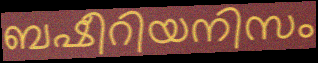
ബഷീറിയനിസം